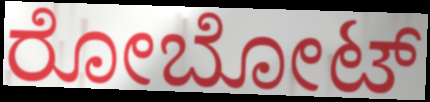
ರೋಬೋಟ್